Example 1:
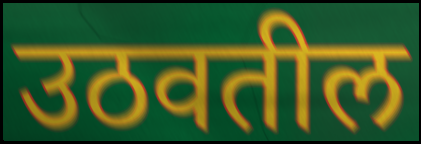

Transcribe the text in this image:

उठवतील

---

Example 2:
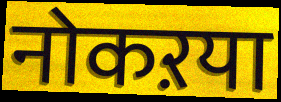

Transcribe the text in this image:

नोकऱया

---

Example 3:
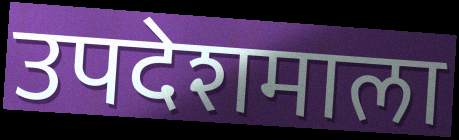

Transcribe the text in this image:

उपदेशमाला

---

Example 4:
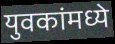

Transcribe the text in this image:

युवकांमध्ये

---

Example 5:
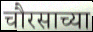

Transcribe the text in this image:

चौरसाच्या